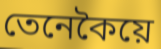
তেনেকৈয়ে